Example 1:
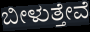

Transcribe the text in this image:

ಬೀಳುತ್ತೇವೆ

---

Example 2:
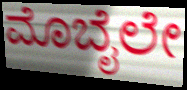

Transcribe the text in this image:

ಮೊಬೈಲೇ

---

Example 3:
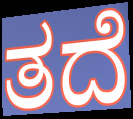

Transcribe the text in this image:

ತದೆ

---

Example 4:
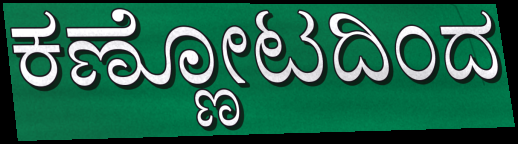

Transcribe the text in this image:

ಕಣ್ಣೋಟದಿಂದ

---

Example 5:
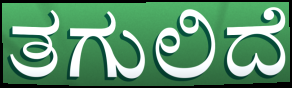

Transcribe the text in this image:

ತಗುಲಿದೆ